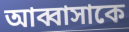
আব্বাসাকে